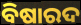
ବିଷାରଦ